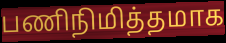
பணிநிமித்தமாக